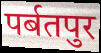
पर्बतपुर